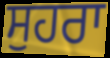
ਸੁਹਰਾ